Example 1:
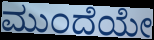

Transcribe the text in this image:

ಮುಂದೆಯೇ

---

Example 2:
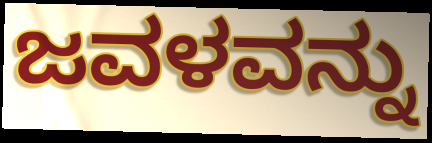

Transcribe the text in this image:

ಜವಳವನ್ನು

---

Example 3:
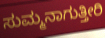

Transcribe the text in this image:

ಸುಮ್ಮನಾಗುತ್ತೀರಿ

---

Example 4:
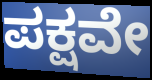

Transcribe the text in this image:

ಪಕ್ಷವೇ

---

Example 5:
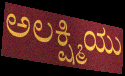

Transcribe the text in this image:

ಅಲಕ್ಷ್ಮಿಯು